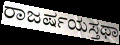
ರಾಜರ್ಷಯಸ್ತಥಾ